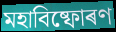
মহাবিষ্ফোৰণ